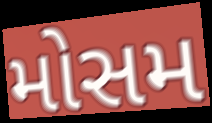
મોસમ